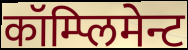
कॉम्प्लिमेन्ट